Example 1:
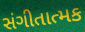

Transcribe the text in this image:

સંગીતાત્મક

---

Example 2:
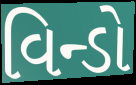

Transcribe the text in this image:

વિન્ડો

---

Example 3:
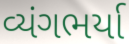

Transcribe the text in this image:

વ્યંગભર્યા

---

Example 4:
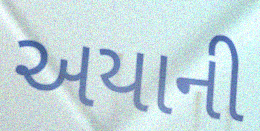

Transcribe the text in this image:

અયાની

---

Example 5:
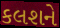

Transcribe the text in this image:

કલશને